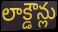
లాక్డౌన్లు